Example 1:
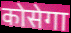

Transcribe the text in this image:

कोसेगा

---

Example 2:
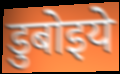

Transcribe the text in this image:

डुबोइये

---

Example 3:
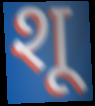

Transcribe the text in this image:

शू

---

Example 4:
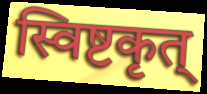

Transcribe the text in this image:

स्विष्टकृत्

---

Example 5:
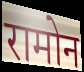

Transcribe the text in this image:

रामोन